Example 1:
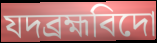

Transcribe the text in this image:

যদব্রহ্মবিদো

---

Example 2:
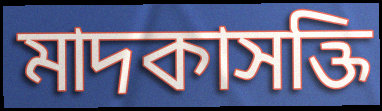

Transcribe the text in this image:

মাদকাসক্তি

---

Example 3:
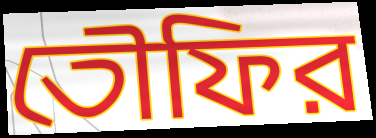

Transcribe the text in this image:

তৌফির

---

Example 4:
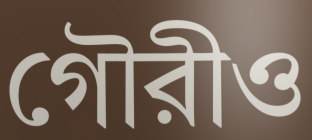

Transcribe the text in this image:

গৌরীও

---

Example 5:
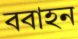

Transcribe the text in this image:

ববাহন